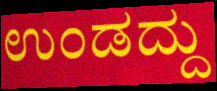
ಉಂಡದ್ದು